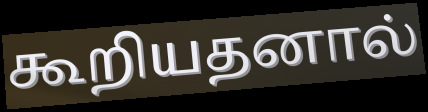
கூறியதனால்